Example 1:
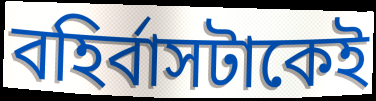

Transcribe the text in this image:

বহির্বাসটাকেই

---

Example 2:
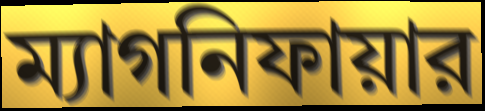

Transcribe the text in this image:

ম্যাগনিফায়ার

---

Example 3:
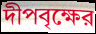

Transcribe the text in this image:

দীপবৃক্ষের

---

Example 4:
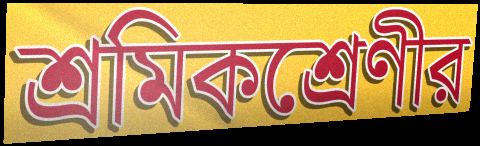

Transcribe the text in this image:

শ্রমিকশ্রেণীর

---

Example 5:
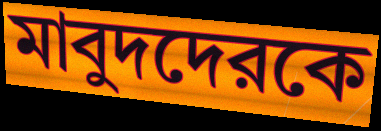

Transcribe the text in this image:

মাবুদদেরকে